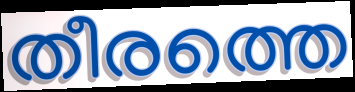
തീരത്തെ